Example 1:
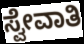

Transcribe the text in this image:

ಸ್ವೇವಾತಿ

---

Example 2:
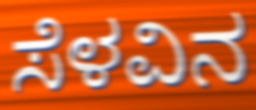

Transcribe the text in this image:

ಸೆಳವಿನ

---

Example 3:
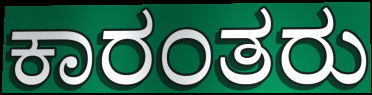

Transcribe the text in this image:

ಕಾರಂತರು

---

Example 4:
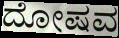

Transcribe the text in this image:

ದೋಷವ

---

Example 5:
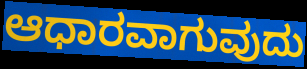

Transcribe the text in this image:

ಆಧಾರವಾಗುವುದು